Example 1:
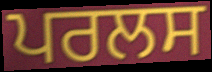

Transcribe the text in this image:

ਪਰਲਸ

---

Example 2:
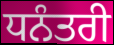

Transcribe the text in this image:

ਧਨੰਤਰੀ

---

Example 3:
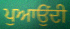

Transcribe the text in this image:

ਪੁਆਉਂਦੀ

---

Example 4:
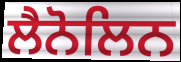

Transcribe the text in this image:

ਲੈਨੋਲਿਨ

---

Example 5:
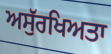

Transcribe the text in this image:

ਅਸੁੱਰਖਿਅਤਾ